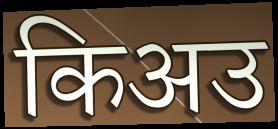
किअउ